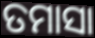
ତମାସା